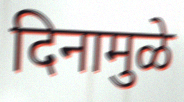
दिनामुळे